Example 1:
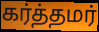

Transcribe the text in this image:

கர்த்தமர்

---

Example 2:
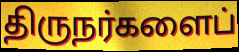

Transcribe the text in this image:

திருநர்களைப்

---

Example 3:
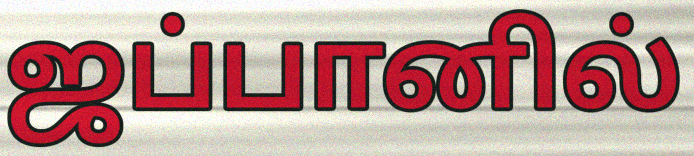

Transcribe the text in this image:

ஜப்பானில்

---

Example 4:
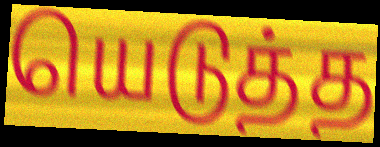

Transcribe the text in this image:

யெடுத்த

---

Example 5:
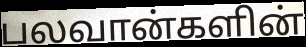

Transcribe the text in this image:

பலவான்களின்